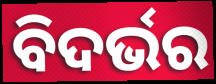
ବିଦର୍ଭର